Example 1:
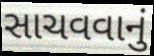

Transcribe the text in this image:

સાચવવાનું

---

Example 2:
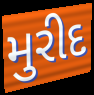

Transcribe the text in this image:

મુરીદ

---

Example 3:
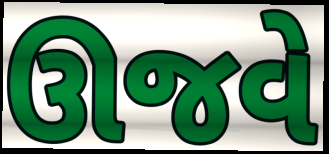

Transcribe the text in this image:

ઊજવે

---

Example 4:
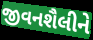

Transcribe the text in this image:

જીવનશૈલીને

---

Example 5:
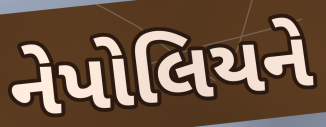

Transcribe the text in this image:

નેપોલિયને